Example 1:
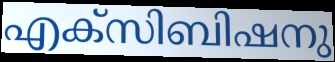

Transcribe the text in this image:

എക്സിബിഷനു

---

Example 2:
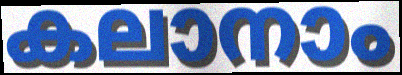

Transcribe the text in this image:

കലാനാം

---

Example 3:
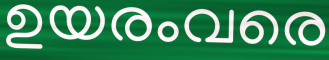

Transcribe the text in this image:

ഉയരംവരെ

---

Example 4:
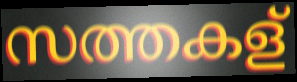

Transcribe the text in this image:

സത്തകള്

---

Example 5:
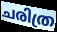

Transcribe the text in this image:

ചരിത്ര